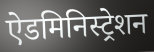
ऐडमिनिस्ट्रेशन